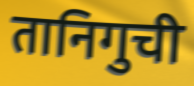
तानिगुची